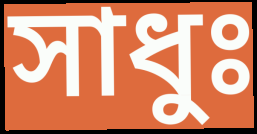
সাধুঃ